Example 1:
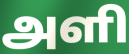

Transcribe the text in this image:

அளி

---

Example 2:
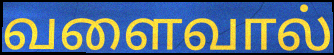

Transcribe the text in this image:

வளைவால்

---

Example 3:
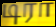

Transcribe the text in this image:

டிரா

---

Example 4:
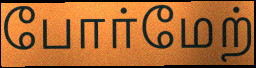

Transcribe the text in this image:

போர்மேற்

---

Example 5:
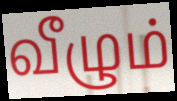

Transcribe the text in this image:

வீழும்